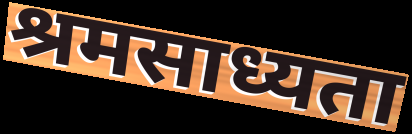
श्रमसाध्यता